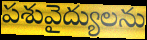
పశువైద్యులను